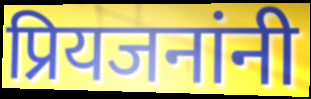
प्रियजनांनी